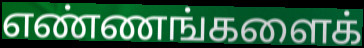
எண்ணங்களைக்